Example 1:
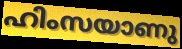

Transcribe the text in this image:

ഹിംസയാണു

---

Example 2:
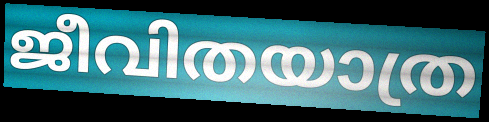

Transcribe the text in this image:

ജീവിതയാത്ര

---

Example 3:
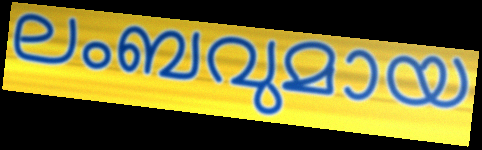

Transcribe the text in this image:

ലംബവുമായ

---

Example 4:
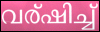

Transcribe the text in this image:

വര്ഷിച്ച്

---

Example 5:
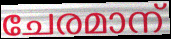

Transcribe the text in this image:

ചേരമാന്